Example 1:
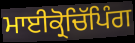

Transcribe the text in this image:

ਮਾਈਕ੍ਰੋਚਿੱਪਿੰਗ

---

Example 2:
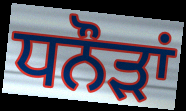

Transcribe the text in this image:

ਧਨੌੜਾਂ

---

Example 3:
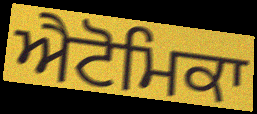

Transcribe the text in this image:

ਐਟੋਮਿਕਾ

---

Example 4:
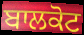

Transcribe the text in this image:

ਬਾਲਕੋਟ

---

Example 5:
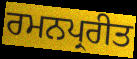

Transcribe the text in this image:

ਰਮਨਪ੍ਰਰੀਤ